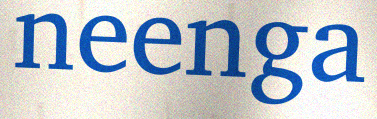
neenga